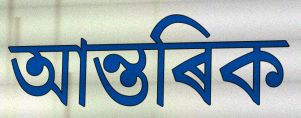
আন্তৰিক